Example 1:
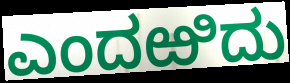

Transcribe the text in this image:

ಎಂದಱಿದು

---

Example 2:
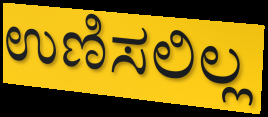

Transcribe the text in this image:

ಉಣಿಸಲಿಲ್ಲ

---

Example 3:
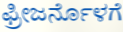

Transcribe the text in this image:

ಫ್ರೀಜರ್ನೊಳಗೆ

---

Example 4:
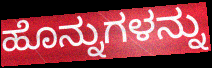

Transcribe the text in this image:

ಹೊನ್ನುಗಳನ್ನು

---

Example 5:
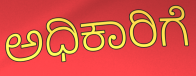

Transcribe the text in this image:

ಅಧಿಕಾರಿಗೆ